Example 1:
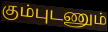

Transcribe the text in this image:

கும்புடணும்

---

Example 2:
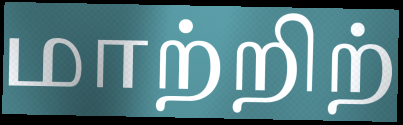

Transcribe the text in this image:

மாற்றிற்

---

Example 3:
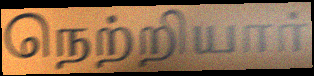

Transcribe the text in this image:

நெற்றியார்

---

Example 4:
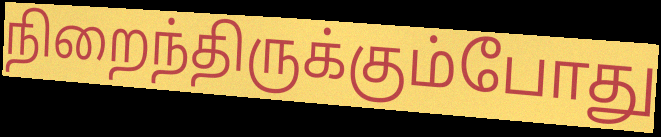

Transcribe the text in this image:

நிறைந்திருக்கும்போது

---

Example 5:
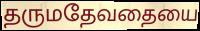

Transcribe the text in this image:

தருமதேவதையை